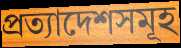
প্রত্যাদেশসমূহ